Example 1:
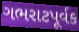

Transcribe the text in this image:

ગભરાટપૂર્વક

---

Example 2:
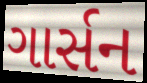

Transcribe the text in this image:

ગાર્સન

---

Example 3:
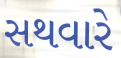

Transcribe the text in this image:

સથવારે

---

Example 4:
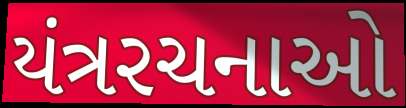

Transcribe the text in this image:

યંત્રરચનાઓ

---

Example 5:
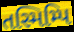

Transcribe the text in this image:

તસ્મિમ્પિ